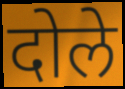
दोले